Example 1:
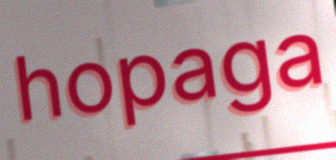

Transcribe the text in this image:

hopaga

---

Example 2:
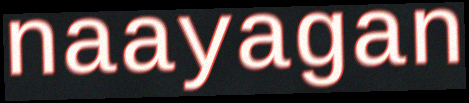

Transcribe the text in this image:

naayagan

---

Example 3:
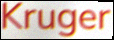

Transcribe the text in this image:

Kruger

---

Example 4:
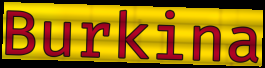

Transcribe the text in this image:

Burkina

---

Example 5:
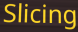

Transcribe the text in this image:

Slicing